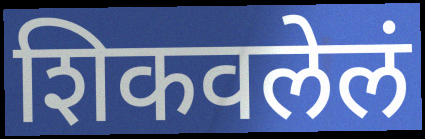
शिकवलेलं